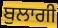
ਬੁਲਾਗੀ